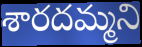
శారదమ్మని